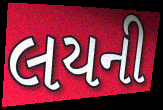
લયની